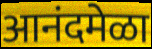
आनंदमेळा